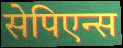
सेपिएन्स